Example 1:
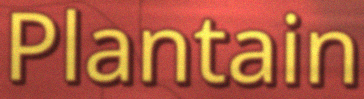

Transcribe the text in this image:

Plantain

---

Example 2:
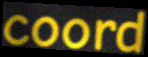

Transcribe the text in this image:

coord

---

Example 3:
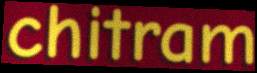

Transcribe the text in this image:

chitram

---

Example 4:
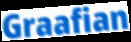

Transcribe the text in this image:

Graafian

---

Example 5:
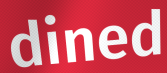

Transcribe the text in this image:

dined